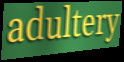
adultery